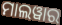
ମାଲୱାର